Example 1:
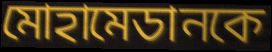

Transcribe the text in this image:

মোহামেডানকে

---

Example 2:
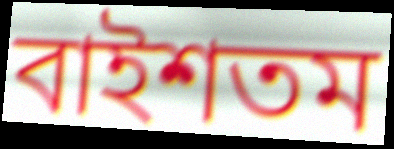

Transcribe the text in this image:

বাইশতম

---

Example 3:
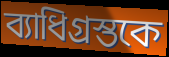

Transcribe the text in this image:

ব্যাধিগ্রস্তকে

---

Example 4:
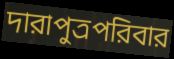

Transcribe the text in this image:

দারাপুত্রপরিবার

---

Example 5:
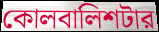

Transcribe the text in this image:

কোলবালিশটার